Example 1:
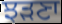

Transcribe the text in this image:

ਝੜਣਾ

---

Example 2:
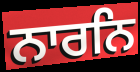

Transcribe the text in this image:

ਨਾਰਨਿ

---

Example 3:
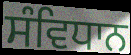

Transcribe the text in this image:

ਸੰਵਿਧਾਨ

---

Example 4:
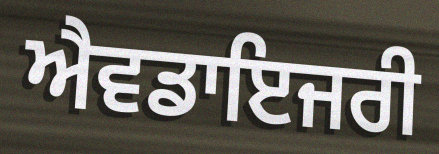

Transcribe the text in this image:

ਐਵਡਾਇਜਰੀ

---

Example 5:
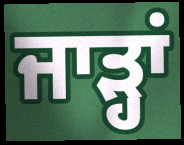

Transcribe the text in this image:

ਜਾੜ੍ਹਾਂ